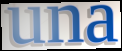
una